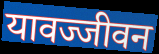
यावज्जीवन